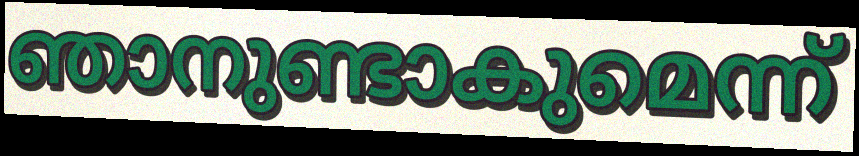
ഞാനുണ്ടാകുമെന്ന്